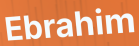
Ebrahim